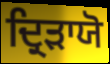
ਦ੍ਰਿੜਾਯੋ